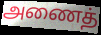
அணைத்